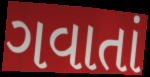
ગવાતાં